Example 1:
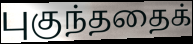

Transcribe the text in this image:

புகுந்ததைக்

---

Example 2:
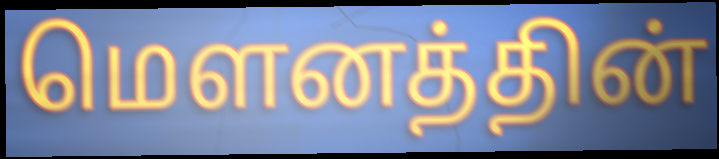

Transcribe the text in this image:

மௌனத்தின்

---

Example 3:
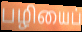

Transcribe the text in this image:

பழியைப்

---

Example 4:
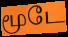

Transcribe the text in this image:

மூடே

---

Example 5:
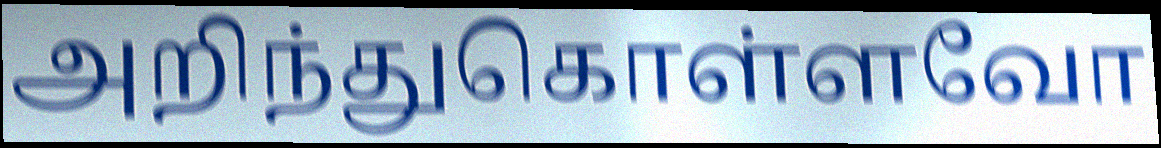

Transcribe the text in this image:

அறிந்துகொள்ளவோ